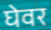
घेवर